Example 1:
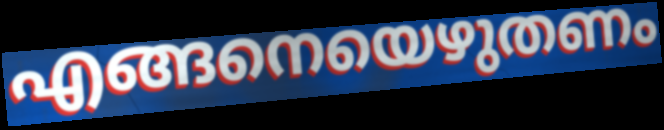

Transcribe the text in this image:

എങ്ങനെയെഴുതണം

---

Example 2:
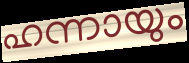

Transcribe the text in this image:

ഹന്നായും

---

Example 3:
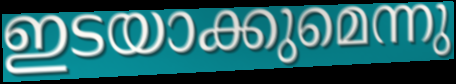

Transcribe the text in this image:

ഇടയാക്കുമെന്നു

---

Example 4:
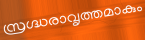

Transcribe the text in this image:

സ്രഗ്ദ്ധരാവൃത്തമാകും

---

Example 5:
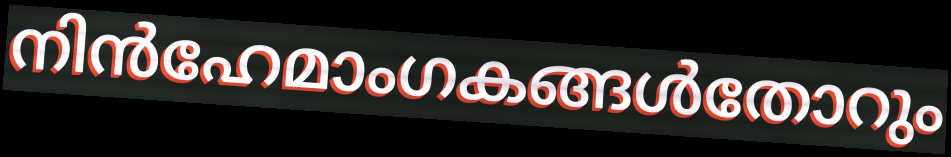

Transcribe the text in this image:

നിൻഹേമാംഗകങ്ങൾതോറും